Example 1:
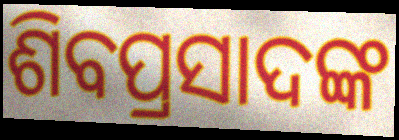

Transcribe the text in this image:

ଶିବପ୍ରସାଦଙ୍କ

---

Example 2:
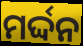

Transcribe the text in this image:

ମର୍ଦ୍ଦନ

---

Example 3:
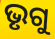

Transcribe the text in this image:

ଭୃଗୁ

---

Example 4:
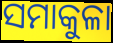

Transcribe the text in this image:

ସମାକୁଳା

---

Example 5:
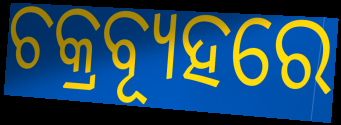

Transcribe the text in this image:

ଚକ୍ରବ୍ୟୂହରେ